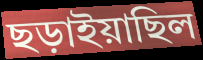
ছড়াইয়াছিল